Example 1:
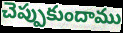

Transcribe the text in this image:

చెప్పుకుందాము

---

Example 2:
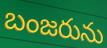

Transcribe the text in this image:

బంజరును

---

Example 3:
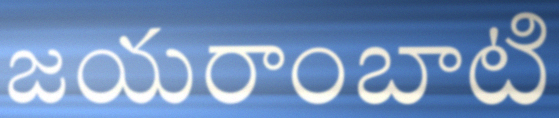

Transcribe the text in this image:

జయరాంబాటి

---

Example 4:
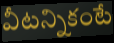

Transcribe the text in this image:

వీటన్నికంటే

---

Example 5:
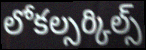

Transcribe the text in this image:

లోకల్సర్కిల్స్